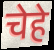
चेहे